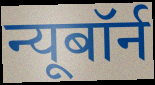
न्यूबॉर्न